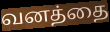
வனத்தை